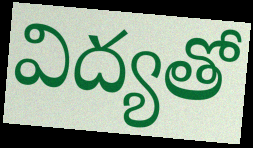
విద్యతో